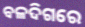
ବଳଦିଗରେ